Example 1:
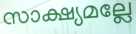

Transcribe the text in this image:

സാക്ഷ്യമല്ലേ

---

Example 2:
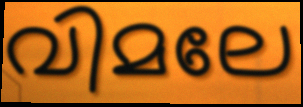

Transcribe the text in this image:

വിമലേ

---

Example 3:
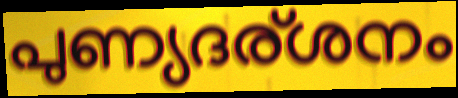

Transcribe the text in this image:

പുണ്യദര്ശനം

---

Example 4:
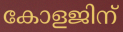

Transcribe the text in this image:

കോളജിന്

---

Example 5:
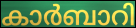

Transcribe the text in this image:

കാർബാറി